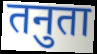
तनुता